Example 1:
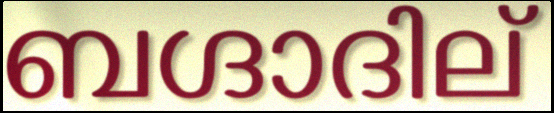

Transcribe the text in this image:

ബഗ്ദാദില്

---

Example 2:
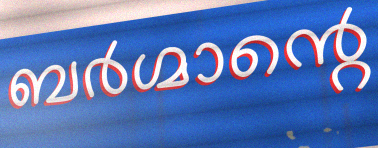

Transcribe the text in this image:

ബർഗ്മാന്റെ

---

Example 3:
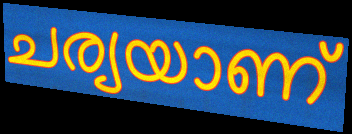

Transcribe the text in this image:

ചര്യയാണ്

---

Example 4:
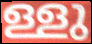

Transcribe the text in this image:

ള്ളു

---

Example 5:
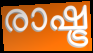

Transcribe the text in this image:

രാഷ്ട്ര